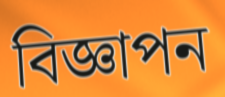
বিজ্ঞাপন